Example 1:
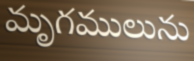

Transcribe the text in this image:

మృగములును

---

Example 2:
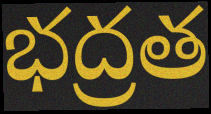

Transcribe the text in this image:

భద్రత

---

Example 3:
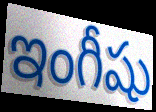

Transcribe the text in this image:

ఇంగీషు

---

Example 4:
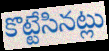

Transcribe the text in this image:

కొట్టేసినట్లు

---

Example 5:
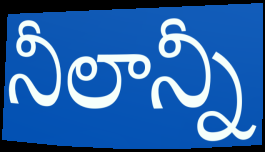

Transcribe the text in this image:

నీలాన్నీ